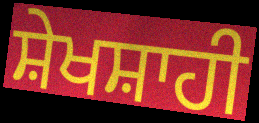
ਸ਼ੇਖਸ਼ਾਹੀ